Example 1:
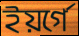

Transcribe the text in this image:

ইয়র্গে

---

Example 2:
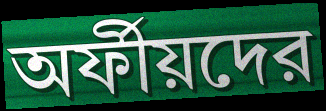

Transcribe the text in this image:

অর্ফীয়দের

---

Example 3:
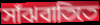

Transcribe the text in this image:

সাঁঝবাতিতে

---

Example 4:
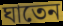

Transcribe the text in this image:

ঘাতেন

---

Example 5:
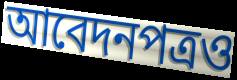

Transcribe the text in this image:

আবেদনপত্রও